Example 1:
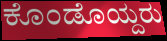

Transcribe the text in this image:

ಕೊಂಡೊಯ್ದರು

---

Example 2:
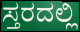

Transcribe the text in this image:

ಸ್ತರದಲ್ಲಿ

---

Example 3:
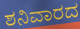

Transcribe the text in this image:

ಶನಿವಾರದ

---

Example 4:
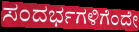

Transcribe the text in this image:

ಸಂದರ್ಭಗಳಿಗೆಂದೇ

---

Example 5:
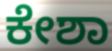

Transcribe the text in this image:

ಕೇಶಾ